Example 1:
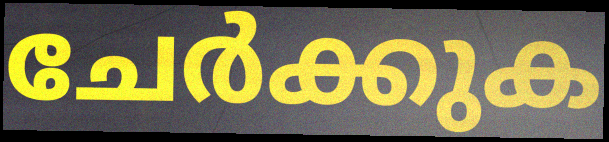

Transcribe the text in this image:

ചേർക്കുക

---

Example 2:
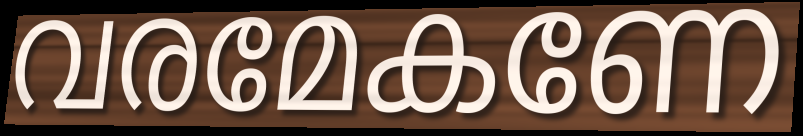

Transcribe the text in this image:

വരമേകണേ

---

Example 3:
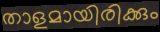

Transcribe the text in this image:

താളമായിരിക്കും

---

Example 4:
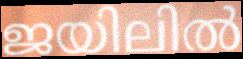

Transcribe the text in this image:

ജയിലിൽ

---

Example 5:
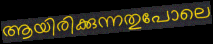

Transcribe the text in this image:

ആയിരിക്കുന്നതുപോലെ